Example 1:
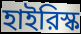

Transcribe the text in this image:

হাইরিস্ক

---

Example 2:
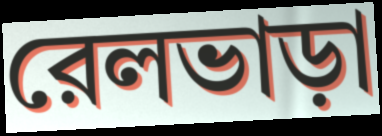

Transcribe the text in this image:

রেলভাড়া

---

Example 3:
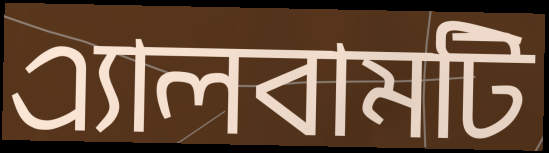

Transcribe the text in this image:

এ্যালবামটি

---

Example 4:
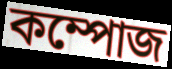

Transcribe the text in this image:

কম্পোজ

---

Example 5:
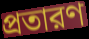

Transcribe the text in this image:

প্রতারণ